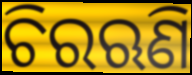
ଚିରଋଣି